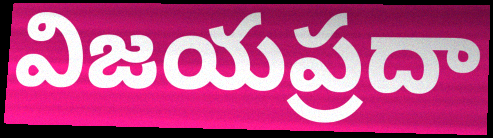
విజయప్రదా